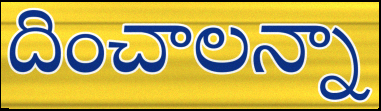
దించాలన్నా